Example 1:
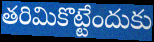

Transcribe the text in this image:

తరిమికొట్టేందుకు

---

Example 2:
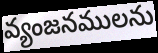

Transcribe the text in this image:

వ్యంజనములను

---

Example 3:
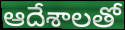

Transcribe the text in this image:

ఆదేశాలతో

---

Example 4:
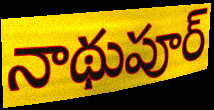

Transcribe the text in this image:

నాథుపూర్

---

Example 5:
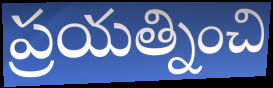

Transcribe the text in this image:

ప్రయత్నించి